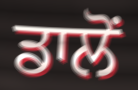
ਡਾਲੋਂ